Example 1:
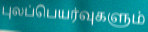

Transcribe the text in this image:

புலப்பெயர்வுகளும்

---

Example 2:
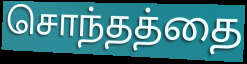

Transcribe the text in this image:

சொந்தத்தை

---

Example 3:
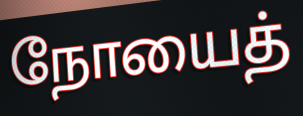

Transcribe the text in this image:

நோயைத்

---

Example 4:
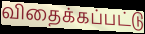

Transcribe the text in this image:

விதைக்கப்பட்டு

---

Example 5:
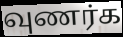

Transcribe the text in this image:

வுணர்க